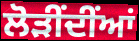
ਲੋੜੀਂਦੀਂਆਂ